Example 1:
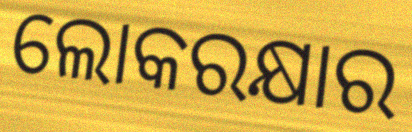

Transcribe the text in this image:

ଲୋକରକ୍ଷାର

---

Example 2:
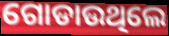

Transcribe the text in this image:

ଗୋଡାଉଥିଲେ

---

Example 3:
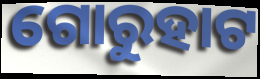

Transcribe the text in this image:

ଗୋରୁହାଟ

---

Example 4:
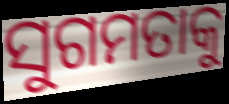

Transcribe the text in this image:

ସୁଗମତାକୁ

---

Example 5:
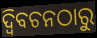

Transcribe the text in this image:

ଦ୍ବିବଚନଠାରୁ